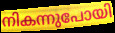
നികന്നുപോയി